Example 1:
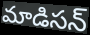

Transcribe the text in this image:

మాడిసన్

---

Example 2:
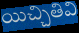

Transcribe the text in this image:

యిచ్చితివి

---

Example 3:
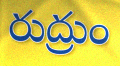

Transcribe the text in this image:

రుద్రుం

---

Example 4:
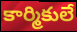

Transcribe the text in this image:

కార్మికులే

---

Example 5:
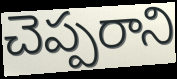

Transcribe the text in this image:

చెప్పరాని